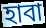
হাবা